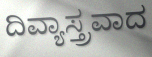
ದಿವ್ಯಾಸ್ತ್ರವಾದ